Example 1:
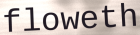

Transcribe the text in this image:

floweth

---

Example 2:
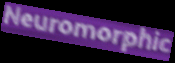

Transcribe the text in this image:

Neuromorphic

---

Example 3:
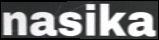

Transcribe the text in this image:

nasika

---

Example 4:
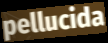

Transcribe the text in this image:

pellucida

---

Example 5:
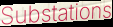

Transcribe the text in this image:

Substations